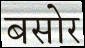
बसोर